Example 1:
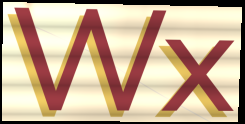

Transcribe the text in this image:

Wx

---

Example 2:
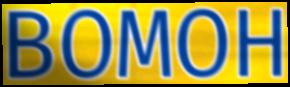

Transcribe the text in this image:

BOMOH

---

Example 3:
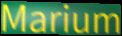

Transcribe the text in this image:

Marium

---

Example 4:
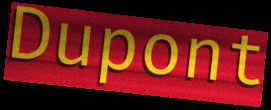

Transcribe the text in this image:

Dupont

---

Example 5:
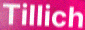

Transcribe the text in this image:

Tillich